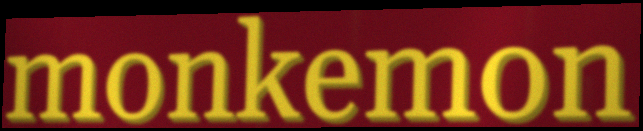
monkemon